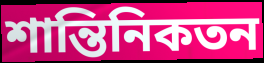
শান্তিনিকতন